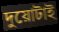
দুয়োটাই